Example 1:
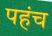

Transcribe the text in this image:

पहंच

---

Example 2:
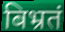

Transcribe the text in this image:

बिभ्रतं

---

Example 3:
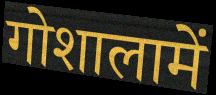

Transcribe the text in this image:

गोशालामें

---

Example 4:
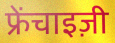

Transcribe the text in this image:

फ्रेंचाइज़ी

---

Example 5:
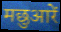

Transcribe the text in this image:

मछुआरें